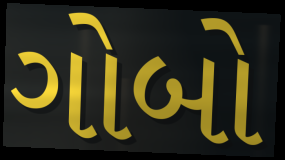
ગોબો